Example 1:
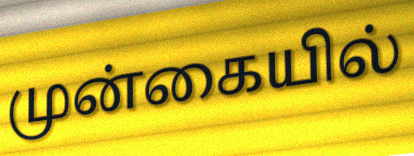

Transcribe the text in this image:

முன்கையில்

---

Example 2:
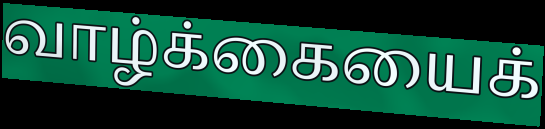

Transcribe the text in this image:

வாழ்க்கையைக்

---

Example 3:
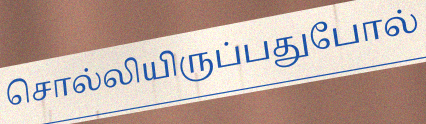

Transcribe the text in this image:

சொல்லியிருப்பதுபோல்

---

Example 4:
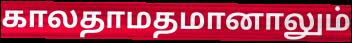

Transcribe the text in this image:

காலதாமதமானாலும்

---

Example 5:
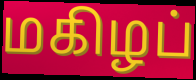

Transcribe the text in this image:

மகிழப்